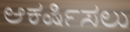
ಆಕರ್ಷಿಸಲು